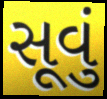
સૂવું